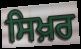
ਸਿਖ਼ਰ